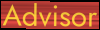
Advisor